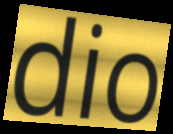
dio